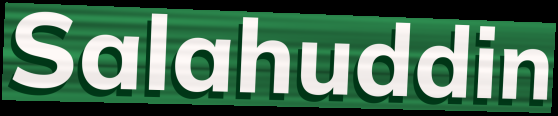
Salahuddin